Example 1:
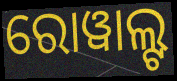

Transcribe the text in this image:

ରୋୱାଲ୍ଟ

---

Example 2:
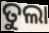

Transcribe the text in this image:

ତୁଲା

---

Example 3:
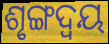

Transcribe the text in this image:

ଶୃଙ୍ଗଦ୍ୱୟ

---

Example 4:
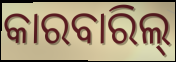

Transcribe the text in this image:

କାରବାରିଲ୍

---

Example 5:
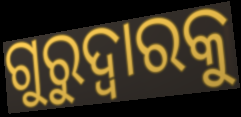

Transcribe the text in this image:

ଗୁରୁଦ୍ୱାରକୁ